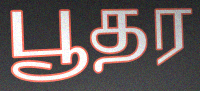
பூதர